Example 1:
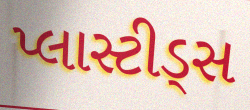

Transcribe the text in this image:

પ્લાસ્ટીડ્સ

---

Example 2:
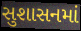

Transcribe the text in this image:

સુશાસનમાં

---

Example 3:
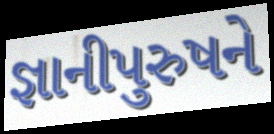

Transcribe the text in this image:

જ્ઞાનીપુરુષને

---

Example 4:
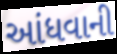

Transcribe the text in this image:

આંધવાની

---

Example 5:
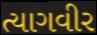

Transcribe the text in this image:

ત્યાગવીર